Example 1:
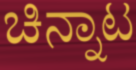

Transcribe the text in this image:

ಚಿನ್ನಾಟ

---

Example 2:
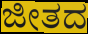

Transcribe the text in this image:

ಜೀತದ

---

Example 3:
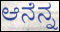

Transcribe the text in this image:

ಆನೆನ್ನ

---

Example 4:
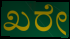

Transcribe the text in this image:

ಖರೇ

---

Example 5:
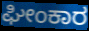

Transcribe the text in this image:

ಘೀಂಕಾರ